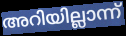
അറിയില്ലാന്ന്